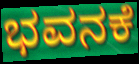
ಭವನಕೆ